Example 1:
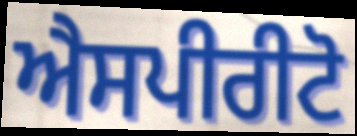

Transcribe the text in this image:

ਐਸਪੀਰੀਟੋ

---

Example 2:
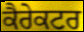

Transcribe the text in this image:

ਕੈਰੇਕਟਰ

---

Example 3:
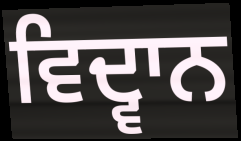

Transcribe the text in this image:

ਵਿਦ੍ਵਾਨ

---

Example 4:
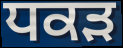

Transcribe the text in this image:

ਧਕੜ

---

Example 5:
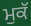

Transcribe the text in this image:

ਮੁਕੱ